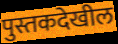
पुस्तकदेखील